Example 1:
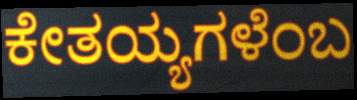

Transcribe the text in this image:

ಕೇತಯ್ಯಗಳೆಂಬ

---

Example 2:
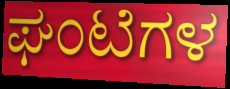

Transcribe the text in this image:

ಘಂಟೆಗಳ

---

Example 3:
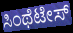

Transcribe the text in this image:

ಸಿಂಥೆಟೇಸ್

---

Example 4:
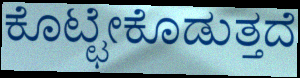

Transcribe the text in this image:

ಕೊಟ್ಟೇಕೊಡುತ್ತದೆ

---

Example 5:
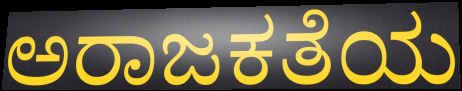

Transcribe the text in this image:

ಅರಾಜಕತೆಯ